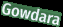
Gowdara